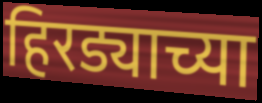
हिरड्याच्या